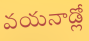
వయనాడ్లో